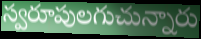
స్వరూపులగుచున్నారు